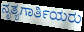
ನೃತ್ಯಗಾರ್ತಿಯರು